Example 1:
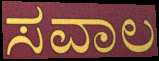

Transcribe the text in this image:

ಸವಾಲ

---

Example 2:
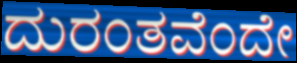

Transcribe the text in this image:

ದುರಂತವೆಂದೇ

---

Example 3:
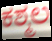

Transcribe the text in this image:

ಕಶ್ಮಲ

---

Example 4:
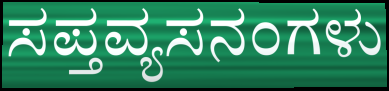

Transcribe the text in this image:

ಸಪ್ತವ್ಯಸನಂಗಳು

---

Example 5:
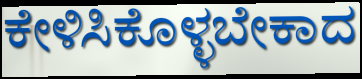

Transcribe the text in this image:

ಕೇಳಿಸಿಕೊಳ್ಳಬೇಕಾದ